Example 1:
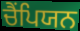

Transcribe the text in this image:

ਚੈੰਪਿਯਨ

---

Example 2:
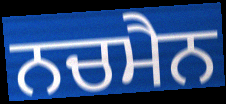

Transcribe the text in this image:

ਨਚਮੈਨ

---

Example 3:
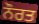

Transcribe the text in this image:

ਨੌਰਤ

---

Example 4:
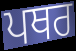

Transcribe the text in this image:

ਪਥਰ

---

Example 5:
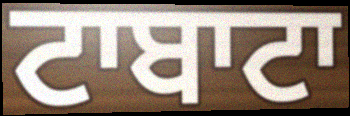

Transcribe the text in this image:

ਟਾਬਾਟਾ